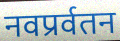
नवप्रर्वतन